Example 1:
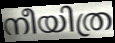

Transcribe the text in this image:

നീയിത്ര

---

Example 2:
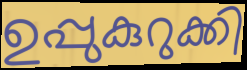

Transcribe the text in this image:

ഉപ്പുകുറുക്കി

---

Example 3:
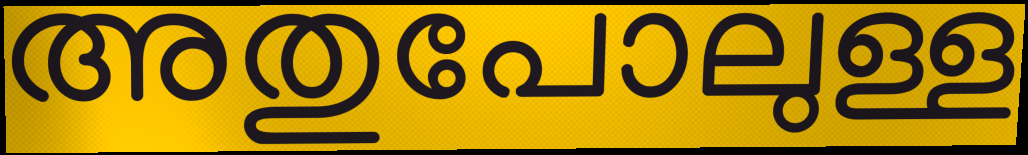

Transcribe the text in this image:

അതുപോലുള്ള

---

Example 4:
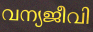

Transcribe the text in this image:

വന്യജീവി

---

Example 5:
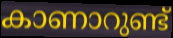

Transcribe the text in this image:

കാണാറുണ്ട്